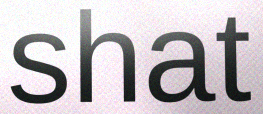
shat